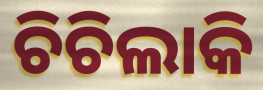
ଚିଚିଲାକି